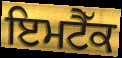
ਇਮਟੈੱਕ